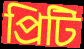
প্রিটি